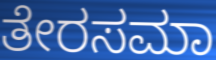
ತೇರಸಮಾ